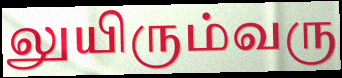
லுயிரும்வரு